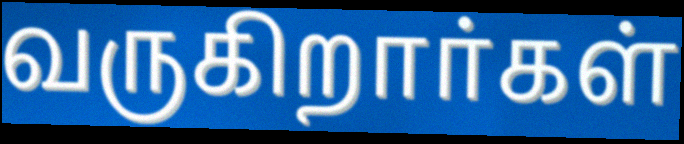
வருகிறார்கள்